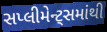
સપ્લીમેન્ટ્સમાંથી